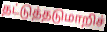
தட்டுத்தடுமாறிச்